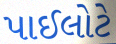
પાઈલોટે